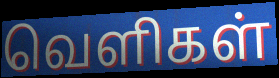
வெளிகள்